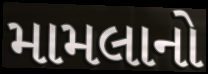
મામલાનો